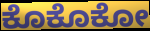
ಕೊಕೊಕೋ